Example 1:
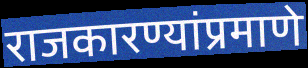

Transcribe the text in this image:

राजकारण्यांप्रमाणे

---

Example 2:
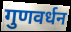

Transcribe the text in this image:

गुणवर्धन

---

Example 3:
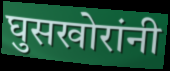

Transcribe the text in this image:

घुसखोरांनी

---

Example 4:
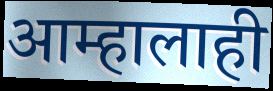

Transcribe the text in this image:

आम्हालाही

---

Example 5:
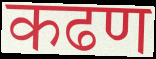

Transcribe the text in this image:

कढण